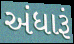
અંધારૂં